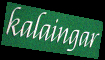
kalaingar